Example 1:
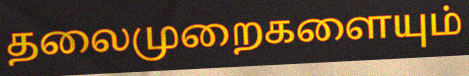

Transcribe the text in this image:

தலைமுறைகளையும்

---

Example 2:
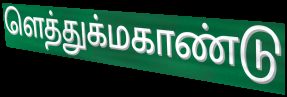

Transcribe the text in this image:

ளெத்துக்மகாண்டு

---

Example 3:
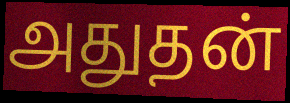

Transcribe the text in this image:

அதுதன்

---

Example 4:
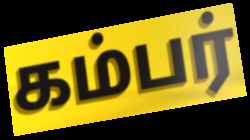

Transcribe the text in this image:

கம்பர்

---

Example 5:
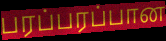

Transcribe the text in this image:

பரப்பரப்பான